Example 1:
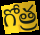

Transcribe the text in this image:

గోత్ర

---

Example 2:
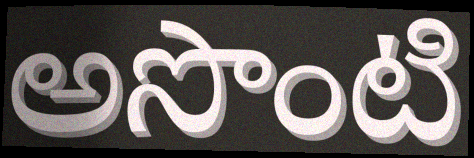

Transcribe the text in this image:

అసొంటి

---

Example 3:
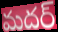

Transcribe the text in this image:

మదర్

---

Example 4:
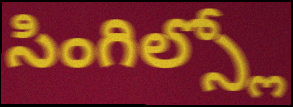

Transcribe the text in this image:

సింగిల్స్లో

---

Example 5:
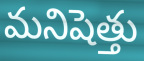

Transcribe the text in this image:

మనిషెత్తు